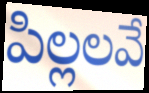
పిల్లలవే